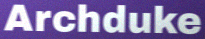
Archduke